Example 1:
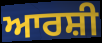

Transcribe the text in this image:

ਆਰਸ਼ੀ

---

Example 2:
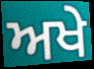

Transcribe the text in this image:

ਅਖੇ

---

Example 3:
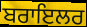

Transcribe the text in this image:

ਬਰਾਇਲਰ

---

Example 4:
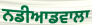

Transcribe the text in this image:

ਨਡੀਆਡਵਾਲਾ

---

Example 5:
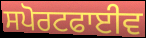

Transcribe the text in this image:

ਸਪੋਰਟਫਾਈਵ